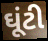
ઘૂંટી